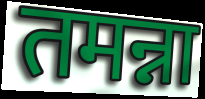
तमन्ना